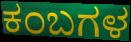
ಕಂಬಗಳ